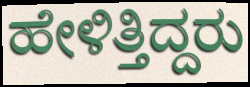
ಹೇಳಿತ್ತಿದ್ದರು